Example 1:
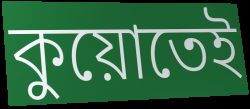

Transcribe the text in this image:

কুয়োতেই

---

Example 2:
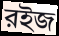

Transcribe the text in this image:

রইজ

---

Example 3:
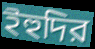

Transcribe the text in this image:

ইহুদির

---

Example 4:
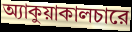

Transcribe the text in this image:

অ্যাকুয়াকালচারে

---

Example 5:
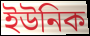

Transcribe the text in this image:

ইউনিক